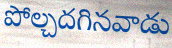
పోల్చదగినవాడు